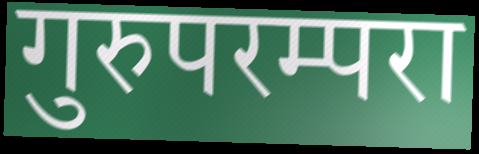
गुरुपरम्परा